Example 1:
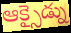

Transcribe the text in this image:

ఆక్సైడ్ను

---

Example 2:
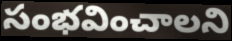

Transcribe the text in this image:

సంభవించాలని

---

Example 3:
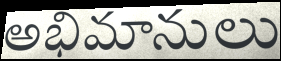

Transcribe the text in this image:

అభిమానులు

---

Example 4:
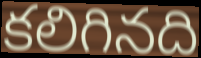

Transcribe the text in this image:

కలిగినది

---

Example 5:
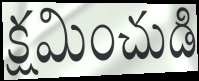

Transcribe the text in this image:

క్షమించుడి